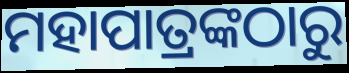
ମହାପାତ୍ରଙ୍କଠାରୁ